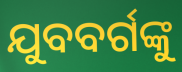
ଯୁବବର୍ଗଙ୍କୁ